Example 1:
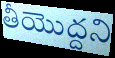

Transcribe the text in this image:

తీయొద్దని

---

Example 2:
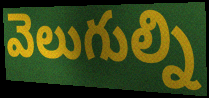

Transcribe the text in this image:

వెలుగుల్ని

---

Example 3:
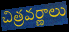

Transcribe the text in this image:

చిత్రవర్ణాలు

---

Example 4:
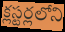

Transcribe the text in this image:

క్లస్టర్లలోని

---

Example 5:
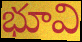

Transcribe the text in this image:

భూవి